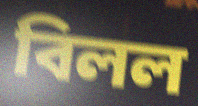
বিলল